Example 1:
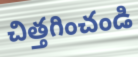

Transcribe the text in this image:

చిత్తగించండి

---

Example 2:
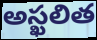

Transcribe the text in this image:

అస్ఖలిత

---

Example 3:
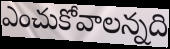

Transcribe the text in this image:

ఎంచుకోవాలన్నది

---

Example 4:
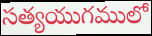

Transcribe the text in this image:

సత్యయుగములో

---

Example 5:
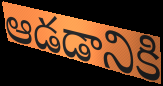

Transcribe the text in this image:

ఆడడానికి